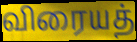
விரையத்